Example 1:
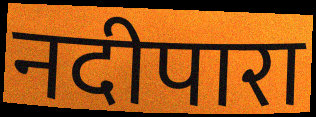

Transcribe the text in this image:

नदीपारा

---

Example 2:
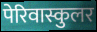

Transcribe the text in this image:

पेरिवास्कुलर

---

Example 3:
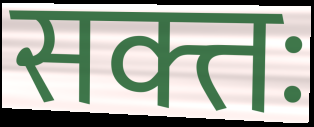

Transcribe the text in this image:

सक्तः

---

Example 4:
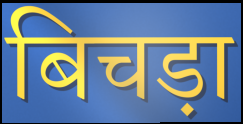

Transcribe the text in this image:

बिचड़ा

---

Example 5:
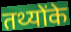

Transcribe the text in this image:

तथ्योंके